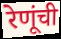
रेणूंची